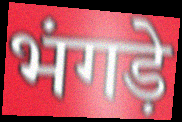
भंगड़े